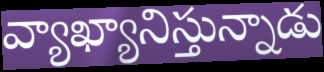
వ్యాఖ్యానిస్తున్నాడు